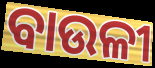
ବାଉଳୀ